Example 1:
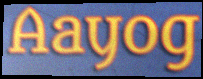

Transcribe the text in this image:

Aayog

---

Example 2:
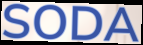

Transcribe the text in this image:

SODA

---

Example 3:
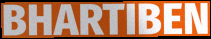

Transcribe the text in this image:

BHARTIBEN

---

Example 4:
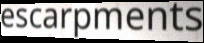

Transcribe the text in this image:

escarpments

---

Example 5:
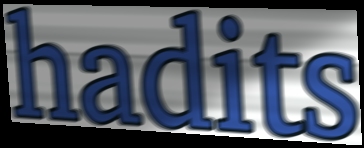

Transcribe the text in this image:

hadits